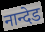
नान्देड